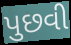
પુછવી